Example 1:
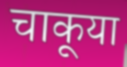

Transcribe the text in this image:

चाकूया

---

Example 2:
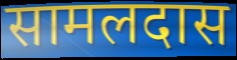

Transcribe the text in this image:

सामलदास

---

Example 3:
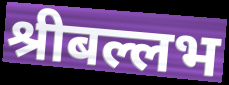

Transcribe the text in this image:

श्रीबल्लभ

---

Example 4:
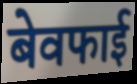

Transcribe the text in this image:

बेवफाई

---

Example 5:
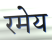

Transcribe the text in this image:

रमेय